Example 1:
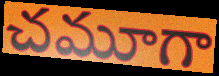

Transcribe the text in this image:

చమూగా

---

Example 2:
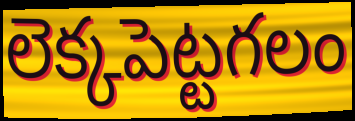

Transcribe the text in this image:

లెక్కపెట్టగలం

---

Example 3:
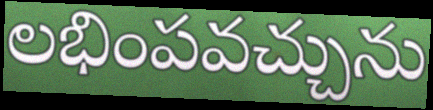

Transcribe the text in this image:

లభింపవచ్చును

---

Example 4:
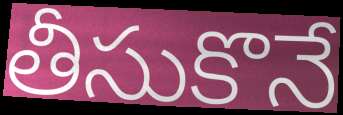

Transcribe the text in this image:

తీసుకొనే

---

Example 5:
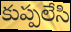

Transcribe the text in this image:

కుప్పలేసి